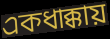
একধাক্কায়